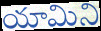
యామిని